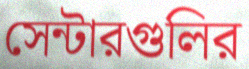
সেন্টারগুলির